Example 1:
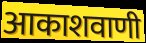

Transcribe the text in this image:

आकाशवाणी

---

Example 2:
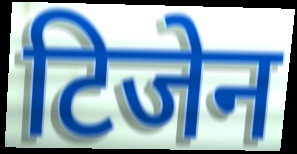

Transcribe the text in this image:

टिजेन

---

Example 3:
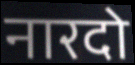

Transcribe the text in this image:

नारदो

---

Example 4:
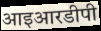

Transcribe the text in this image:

आइआरडीपी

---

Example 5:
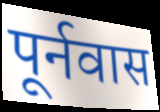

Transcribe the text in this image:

पूर्नवास